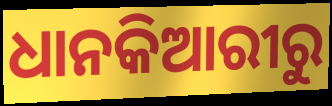
ଧାନକିଆରୀରୁ